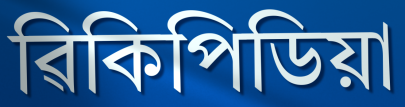
ৱিকিপিডিয়া